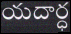
యదార్ధ